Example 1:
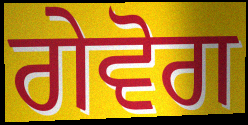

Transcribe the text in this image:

ਗੇਵੋਗ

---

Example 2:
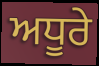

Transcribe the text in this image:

ਅਧੂਰੇ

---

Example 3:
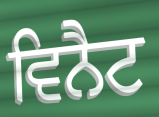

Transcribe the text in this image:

ਵਿਨੈਟ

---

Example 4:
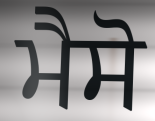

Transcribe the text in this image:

ਮੈਸੋ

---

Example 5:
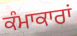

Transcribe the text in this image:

ਕੰਮਾਕਾਰਾਂ